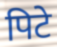
पिटे